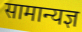
सामान्यज्ञ